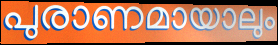
പുരാണമായാലും